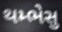
થમ્ભેસુ